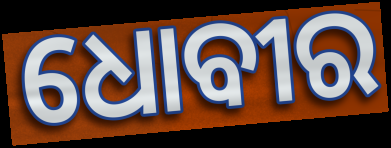
ଧୋବୀର